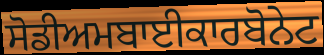
ਸੋਡੀਅਮਬਾਈਕਾਰਬੋਨੇਟ